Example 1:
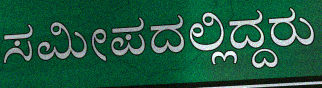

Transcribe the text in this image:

ಸಮೀಪದಲ್ಲಿದ್ದರು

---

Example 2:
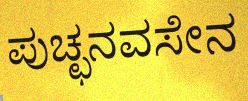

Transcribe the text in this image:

ಪುಚ್ಛನವಸೇನ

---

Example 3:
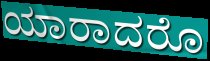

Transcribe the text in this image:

ಯಾರಾದರೊ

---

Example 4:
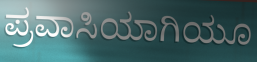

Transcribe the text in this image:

ಪ್ರವಾಸಿಯಾಗಿಯೂ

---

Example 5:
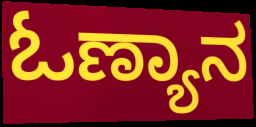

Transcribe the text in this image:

ಓಣ್ಯಾನ